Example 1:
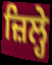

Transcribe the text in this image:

ਜ਼ਿਲ੍ਹੇ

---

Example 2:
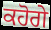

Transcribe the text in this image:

ਕਹੋਗੇ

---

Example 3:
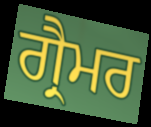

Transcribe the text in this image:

ਗ੍ਰੈਮਰ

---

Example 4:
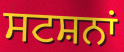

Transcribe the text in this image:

ਸਟਸ਼ਨਾਂ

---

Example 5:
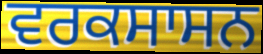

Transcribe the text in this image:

ਵਰਕਸਾਸਨ